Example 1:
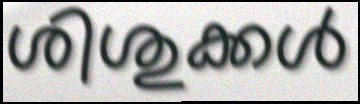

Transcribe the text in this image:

ശിശുക്കൾ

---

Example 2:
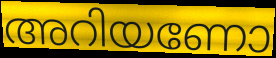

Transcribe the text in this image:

അറിയണോ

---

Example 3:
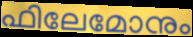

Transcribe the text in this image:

ഫിലേമോനും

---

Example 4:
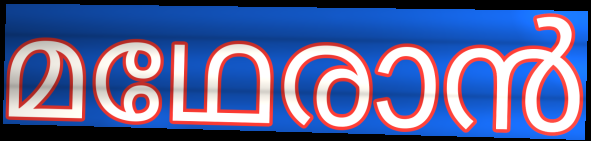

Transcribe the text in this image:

മഥേരാൻ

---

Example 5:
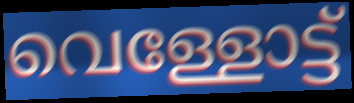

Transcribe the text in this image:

വെള്ളോട്ട്